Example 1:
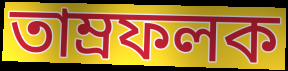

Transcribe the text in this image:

তাম্রফলক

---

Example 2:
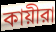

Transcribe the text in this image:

কায়ীরা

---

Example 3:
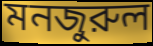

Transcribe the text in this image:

মনজুরুল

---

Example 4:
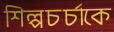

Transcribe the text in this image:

শিল্পচর্চাকে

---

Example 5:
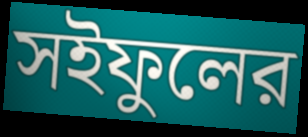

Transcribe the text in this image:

সইফুলের